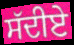
ਸੱਦੀਏ